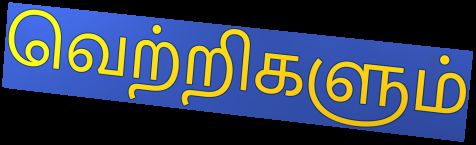
வெற்றிகளும்